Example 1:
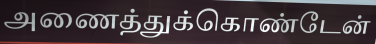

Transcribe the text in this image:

அணைத்துக்கொண்டேன்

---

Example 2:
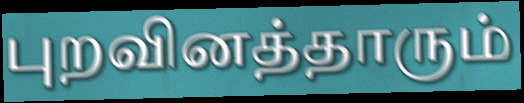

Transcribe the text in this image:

புறவினத்தாரும்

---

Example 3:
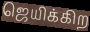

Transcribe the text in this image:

ஜெயிக்கிற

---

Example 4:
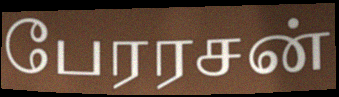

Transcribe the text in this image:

பேரரசன்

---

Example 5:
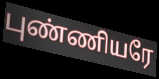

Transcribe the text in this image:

புண்ணியரே